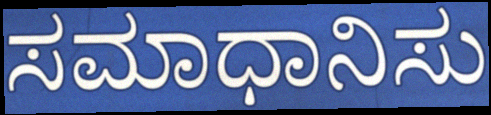
ಸಮಾಧಾನಿಸು